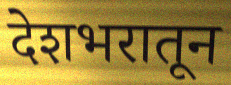
देशभरातून